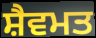
ਸ਼ੈਵਮਤ